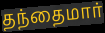
தந்தைமார்